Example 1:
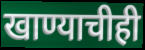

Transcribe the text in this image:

खाण्याचीही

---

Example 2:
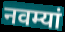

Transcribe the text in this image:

नवम्यां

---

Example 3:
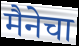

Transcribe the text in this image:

मैनेचा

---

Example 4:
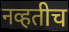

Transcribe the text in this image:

नव्हतीच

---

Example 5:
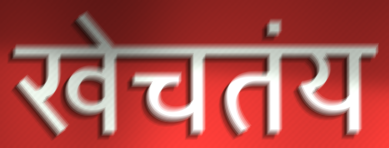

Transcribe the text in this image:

खेचतंय